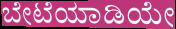
ಬೇಟೆಯಾಡಿಯೇ